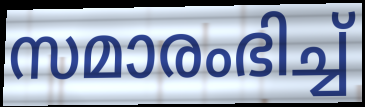
സമാരംഭിച്ച്